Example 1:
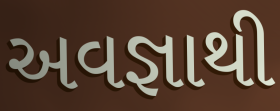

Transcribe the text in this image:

અવજ્ઞાથી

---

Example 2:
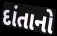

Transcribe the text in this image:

દાંતાનો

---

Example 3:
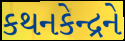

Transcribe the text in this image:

કથનકેન્દ્રને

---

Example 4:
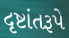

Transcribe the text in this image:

દૃષ્ટાંતરૂપે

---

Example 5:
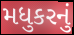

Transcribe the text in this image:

મધુકરનું